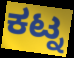
ಕಟ್ನ